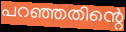
പറഞ്ഞതിന്റെ